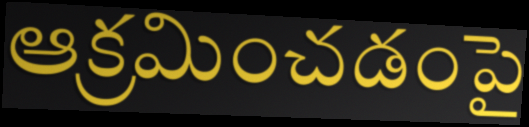
ఆక్రమించడంపై